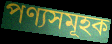
পণ্যসমূহক